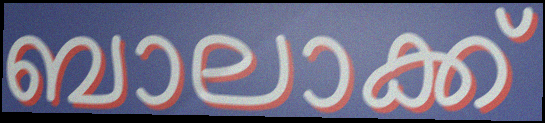
ബാലാക്ക്